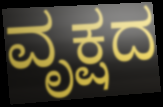
ವೃಕ್ಷದ